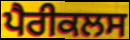
ਪੈਰੀਕਲਸ